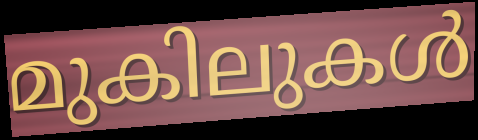
മുകിലുകൾ